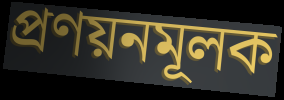
প্রণয়নমূলক